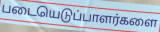
படையெடுப்பாளர்களை